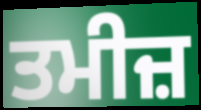
ਤਮੀਜ਼